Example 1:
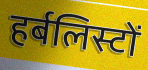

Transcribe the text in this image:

हर्बलिस्टों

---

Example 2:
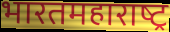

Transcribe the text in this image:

भारतमहाराष्ट्र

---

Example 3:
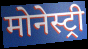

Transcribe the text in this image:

मोनेस्‍ट्री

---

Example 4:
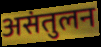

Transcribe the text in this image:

असंतुलन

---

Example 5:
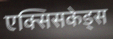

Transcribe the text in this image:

एक्सिसकेड्स